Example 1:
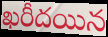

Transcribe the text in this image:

ఖరీదయిన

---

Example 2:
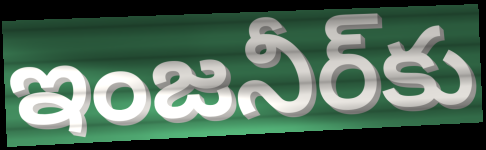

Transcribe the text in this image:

ఇంజనీర్‌కు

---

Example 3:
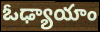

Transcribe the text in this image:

ఓఢ్యాయాం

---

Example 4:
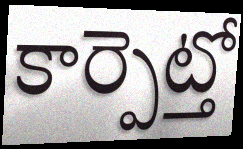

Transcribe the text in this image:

కార్పెట్తో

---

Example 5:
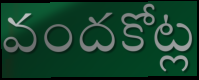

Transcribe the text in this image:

వందకోట్ల